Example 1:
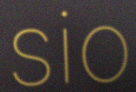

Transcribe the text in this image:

sio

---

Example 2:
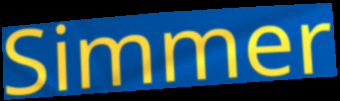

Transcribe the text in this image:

Simmer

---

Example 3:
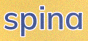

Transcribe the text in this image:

spina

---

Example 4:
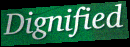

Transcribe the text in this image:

Dignified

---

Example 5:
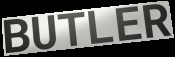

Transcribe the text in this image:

BUTLER